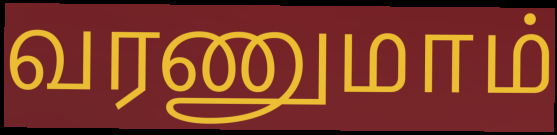
வரணுமாம்